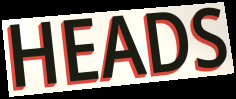
HEADS